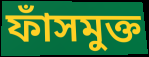
ফাঁসমুক্ত